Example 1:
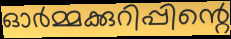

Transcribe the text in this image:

ഓർമ്മക്കുറിപ്പിന്റെ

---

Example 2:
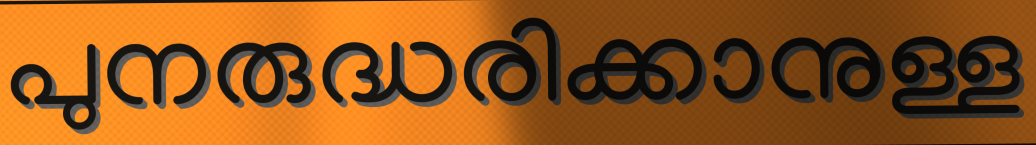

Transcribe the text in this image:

പുനരുദ്ധരിക്കാനുള്ള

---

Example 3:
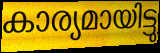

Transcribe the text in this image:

കാര്യമായിട്ടു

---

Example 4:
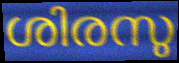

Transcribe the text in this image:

ശിരസു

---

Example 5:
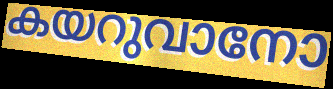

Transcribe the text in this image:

കയറുവാനോ